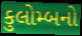
કુલોમ્બનો